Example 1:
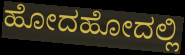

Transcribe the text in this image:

ಹೋದಹೋದಲ್ಲಿ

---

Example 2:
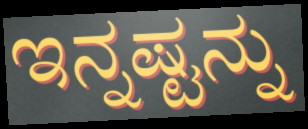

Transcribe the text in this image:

ಇನ್ನಷ್ಟನ್ನು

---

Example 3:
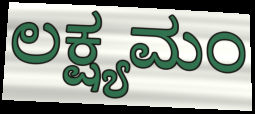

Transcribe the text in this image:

ಲಕ್ಷ್ಯಮಂ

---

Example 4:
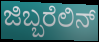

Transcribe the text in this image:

ಜಿಬ್ಬರೆಲಿನ್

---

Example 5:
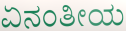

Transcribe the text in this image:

ಏನಂತೀಯ